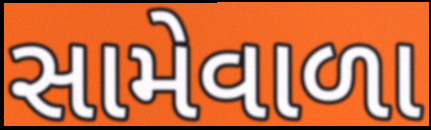
સામેવાળા